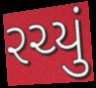
રચ્યું